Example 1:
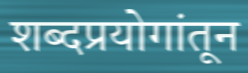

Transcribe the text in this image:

शब्दप्रयोगांतून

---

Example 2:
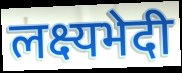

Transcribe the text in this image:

लक्ष्यभेदी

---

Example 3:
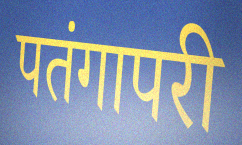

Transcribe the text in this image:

पतंगापरी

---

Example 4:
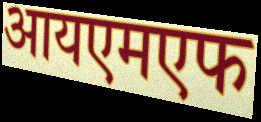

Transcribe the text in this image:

आयएमएफ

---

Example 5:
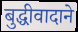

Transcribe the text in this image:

बुद्धीवादाने